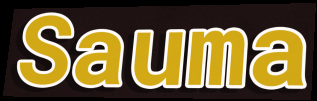
Sauma